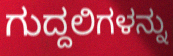
ಗುದ್ದಲಿಗಳನ್ನು